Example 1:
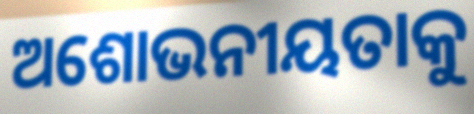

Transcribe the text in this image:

ଅଶୋଭନୀୟତାକୁ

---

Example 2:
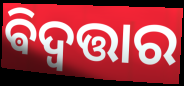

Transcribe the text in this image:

ଵିଦ୍ବତ୍ତାର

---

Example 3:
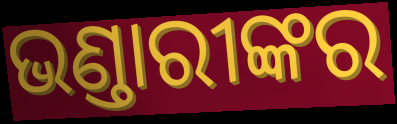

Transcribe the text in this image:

ଭଣ୍ଡାରୀଙ୍କର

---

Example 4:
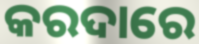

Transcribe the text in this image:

କରଦାରେ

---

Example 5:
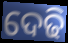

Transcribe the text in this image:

ଦେଢି